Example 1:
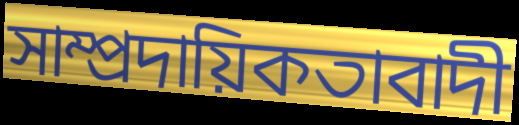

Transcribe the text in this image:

সাম্প্ৰদায়িকতাবাদী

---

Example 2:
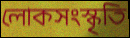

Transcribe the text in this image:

লোকসংস্কৃতি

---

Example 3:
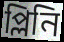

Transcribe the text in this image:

প্লিনি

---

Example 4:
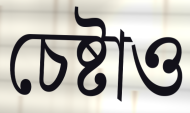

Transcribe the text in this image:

চেষ্টাও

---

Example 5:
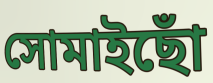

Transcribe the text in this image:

সোমাইছোঁ